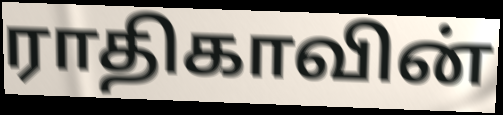
ராதிகாவின்